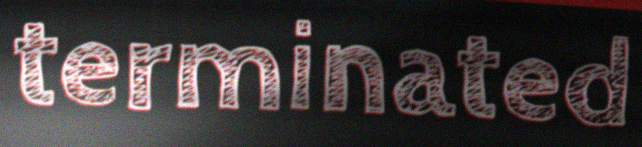
terminated